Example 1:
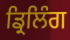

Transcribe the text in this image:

ਡ੍ਰਿਲਿੰਗ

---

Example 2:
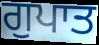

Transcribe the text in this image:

ਗੁਪਾਤ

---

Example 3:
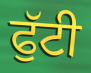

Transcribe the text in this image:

ਫੁੱਟੀ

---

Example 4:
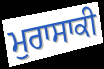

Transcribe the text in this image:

ਮੁਰਾਸਾਕੀ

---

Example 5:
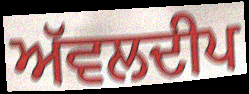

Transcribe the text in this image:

ਅੱਵਲਦੀਪ